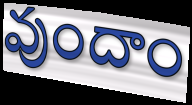
వుందాం